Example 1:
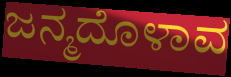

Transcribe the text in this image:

ಜನ್ಮದೊಳಾವ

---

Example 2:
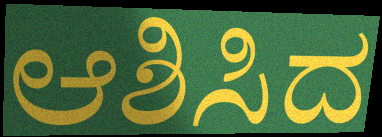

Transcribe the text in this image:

ಆಶಿಸಿದ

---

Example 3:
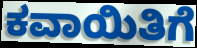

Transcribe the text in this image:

ಕವಾಯಿತಿಗೆ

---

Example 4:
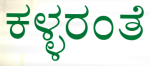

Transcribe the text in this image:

ಕಳ್ಳರಂತೆ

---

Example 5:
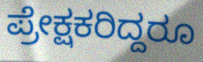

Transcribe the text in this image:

ಪ್ರೇಕ್ಷಕರಿದ್ದರೂ